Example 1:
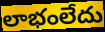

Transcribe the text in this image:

లాభంలేదు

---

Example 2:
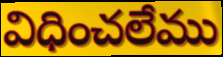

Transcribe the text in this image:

విధించలేము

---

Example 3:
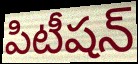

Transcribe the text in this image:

పిటీషన్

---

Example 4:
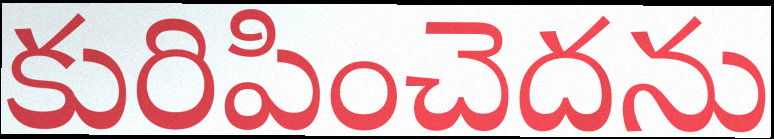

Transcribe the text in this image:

కురిపించెదను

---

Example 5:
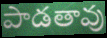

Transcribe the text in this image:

పాడతావు